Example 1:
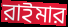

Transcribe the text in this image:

রাইমার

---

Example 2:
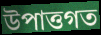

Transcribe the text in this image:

উপাত্তগত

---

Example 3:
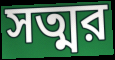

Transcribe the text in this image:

সত্মর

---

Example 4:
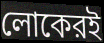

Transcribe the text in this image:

লোকেরই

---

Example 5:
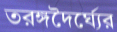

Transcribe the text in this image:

তরঙ্গদৈর্ঘ্যের